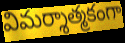
విమర్శాత్మకంగా